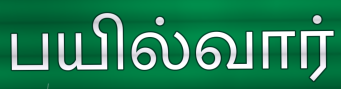
பயில்வார்